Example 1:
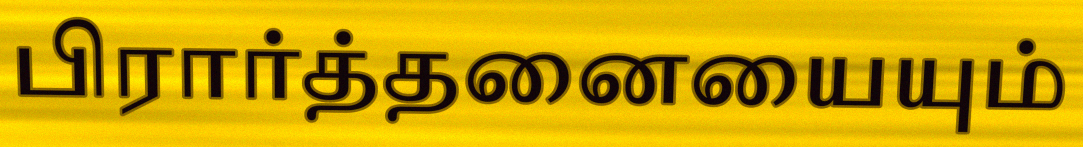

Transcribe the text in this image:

பிரார்த்தனையையும்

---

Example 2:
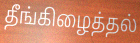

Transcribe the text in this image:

தீங்கிழைத்தல்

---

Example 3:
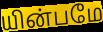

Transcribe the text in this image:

யின்பமே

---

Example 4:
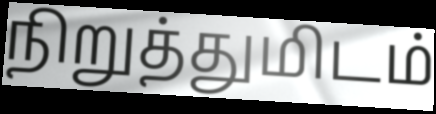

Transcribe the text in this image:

நிறுத்துமிடம்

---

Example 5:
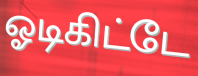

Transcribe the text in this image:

ஓடிகிட்டே